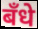
बँधे